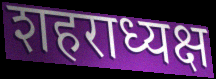
शहराध्यक्ष